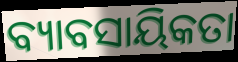
ବ୍ୟାବସାୟିକତା